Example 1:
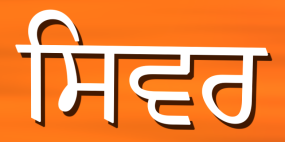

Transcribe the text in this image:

ਸਿਵਰ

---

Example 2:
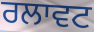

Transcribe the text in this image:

ਰਲਾਵਟ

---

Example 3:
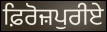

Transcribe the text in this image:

ਫ਼ਿਰੋਜ਼ਪੁਰੀਏ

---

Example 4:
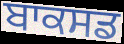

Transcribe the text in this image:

ਬਾਕਸਡ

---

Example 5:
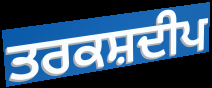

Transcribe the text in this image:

ਤਰਕਸ਼ਦੀਪ